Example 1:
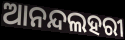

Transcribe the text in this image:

ଆନନ୍ଦଲହରୀ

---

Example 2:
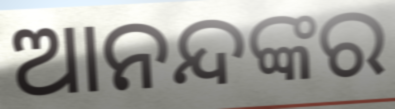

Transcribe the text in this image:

ଆନନ୍ଦଙ୍କର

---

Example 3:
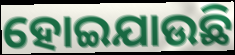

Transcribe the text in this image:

ହୋଇଯାଉଛି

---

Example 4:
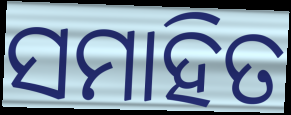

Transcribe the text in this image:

ସମାହିତ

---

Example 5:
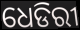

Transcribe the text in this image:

ଧେଡିରୀ